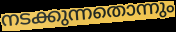
നടക്കുന്നതൊന്നും